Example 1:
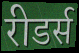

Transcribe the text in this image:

रीडर्स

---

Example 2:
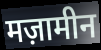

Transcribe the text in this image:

मज़ामीन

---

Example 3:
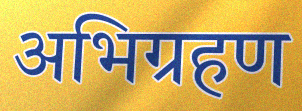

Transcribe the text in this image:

अभिग्रहण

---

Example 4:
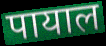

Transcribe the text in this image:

पायाल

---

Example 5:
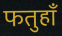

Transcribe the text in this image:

फतुहाँ